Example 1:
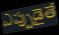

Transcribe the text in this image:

ఎప్పుడైతే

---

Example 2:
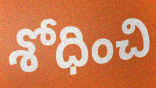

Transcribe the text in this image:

శోధించి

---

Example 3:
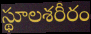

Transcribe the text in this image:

స్థూలశరీరం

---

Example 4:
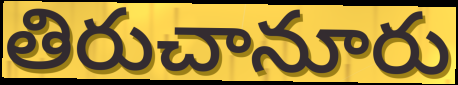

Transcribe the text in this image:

తిరుచానూరు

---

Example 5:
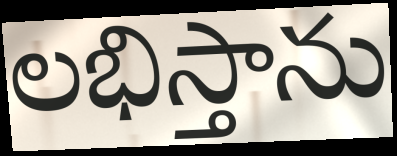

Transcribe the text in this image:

లభిస్తాను